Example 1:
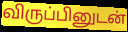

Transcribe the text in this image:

விருப்பினுடன்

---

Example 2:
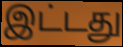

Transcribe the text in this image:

இட்டது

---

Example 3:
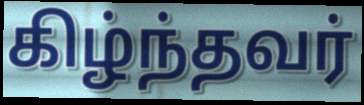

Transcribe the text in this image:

கிழ்ந்தவர்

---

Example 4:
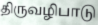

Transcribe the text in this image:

திருவழிபாடு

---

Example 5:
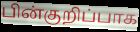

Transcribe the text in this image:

பின்குறிப்பாக